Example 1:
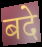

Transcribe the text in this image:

बदे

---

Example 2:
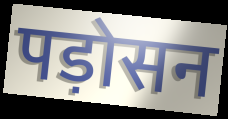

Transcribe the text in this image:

पड़ोसन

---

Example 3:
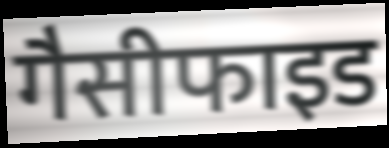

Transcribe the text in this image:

गैसीफाइड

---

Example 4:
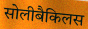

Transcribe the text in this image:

सोलीबैकिलस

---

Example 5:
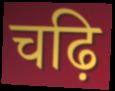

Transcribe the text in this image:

चढ़ि